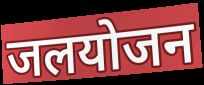
जलयोजन